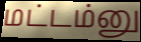
மட்டம்னு